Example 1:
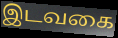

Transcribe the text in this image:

இடவகை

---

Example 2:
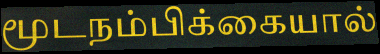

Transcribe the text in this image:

மூடநம்பிக்கையால்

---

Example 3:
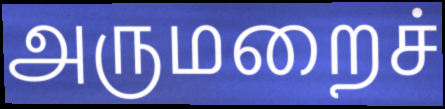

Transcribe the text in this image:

அருமறைச்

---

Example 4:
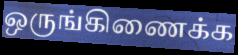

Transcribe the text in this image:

ஒருங்கிணைக்க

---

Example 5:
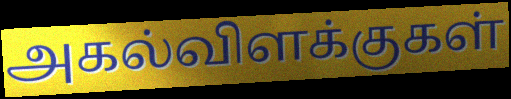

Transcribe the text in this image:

அகல்விளக்குகள்